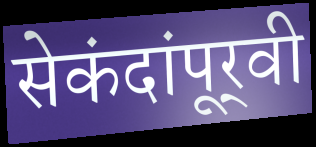
सेकंदांपूर्वी